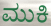
ಮುಕಿ